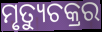
ମୃତ୍ୟୁଚକ୍ରର